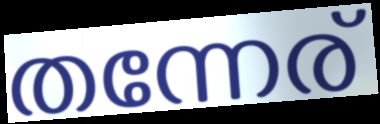
തന്നേര്